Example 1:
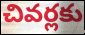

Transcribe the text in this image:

చివర్లకు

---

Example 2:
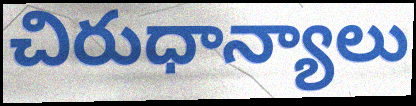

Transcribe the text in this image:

చిరుధాన్యాలు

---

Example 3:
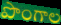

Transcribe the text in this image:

పొంగాల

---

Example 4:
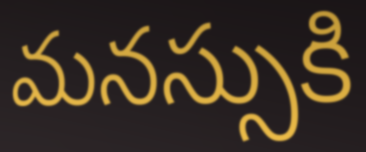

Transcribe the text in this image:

మనస్సుకి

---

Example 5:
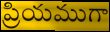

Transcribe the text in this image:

ప్రియముగా